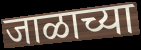
जाळाच्या